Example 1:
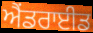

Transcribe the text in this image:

ਐਂਡਰਾਈਡ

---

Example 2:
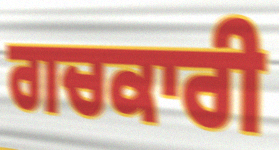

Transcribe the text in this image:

ਗਚਕਾਰੀ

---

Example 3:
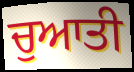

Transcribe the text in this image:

ਚੁਆਤੀ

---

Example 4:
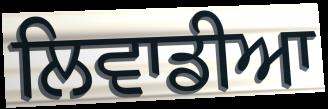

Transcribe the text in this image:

ਲਿਵਾਡੀਆ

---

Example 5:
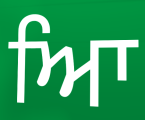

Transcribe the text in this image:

ਆਿ